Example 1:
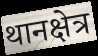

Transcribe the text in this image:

थानक्षेत्र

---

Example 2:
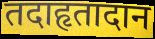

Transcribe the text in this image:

तदाहृतादान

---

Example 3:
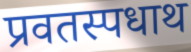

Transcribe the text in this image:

प्रवतस्पधाथ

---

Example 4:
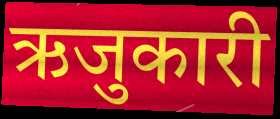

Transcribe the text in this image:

ऋजुकारी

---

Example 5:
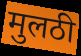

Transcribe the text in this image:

मुलठी